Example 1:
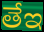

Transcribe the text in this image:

తేఇ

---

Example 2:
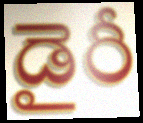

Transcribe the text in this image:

డైరీ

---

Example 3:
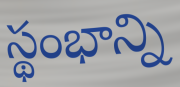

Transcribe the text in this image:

స్థంభాన్ని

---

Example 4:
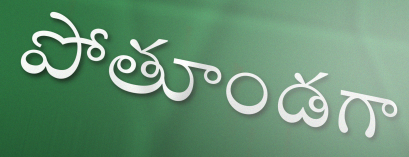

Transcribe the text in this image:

పోతూండగా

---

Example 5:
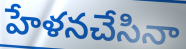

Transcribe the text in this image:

హేళనచేసినా